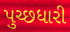
પુચ્છધારી